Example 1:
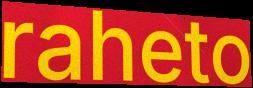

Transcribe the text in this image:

raheto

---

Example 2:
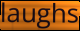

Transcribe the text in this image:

laughs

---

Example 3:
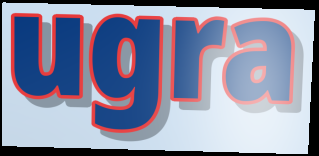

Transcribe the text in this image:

ugra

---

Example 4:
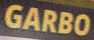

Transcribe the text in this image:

GARBO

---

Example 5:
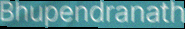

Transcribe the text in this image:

Bhupendranath